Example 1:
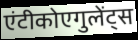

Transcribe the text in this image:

एंटीकोएगुलेंट्स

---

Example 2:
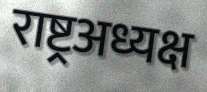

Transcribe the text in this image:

राष्ट्रअध्यक्ष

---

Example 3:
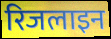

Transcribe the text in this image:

रिजलाइन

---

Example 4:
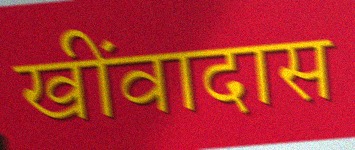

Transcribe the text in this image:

खींवादास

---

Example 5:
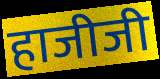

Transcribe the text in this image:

हाजीजी